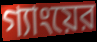
গ্যাংয়ের